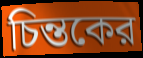
চিন্তকের